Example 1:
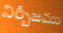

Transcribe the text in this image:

నిర్బీజము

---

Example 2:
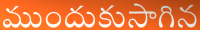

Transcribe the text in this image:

ముందుకుసాగిన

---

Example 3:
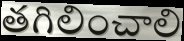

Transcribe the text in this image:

తగిలించాలి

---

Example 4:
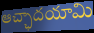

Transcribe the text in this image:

ఆచ్ఛాదయామి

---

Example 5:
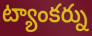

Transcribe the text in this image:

ట్యాంకర్ను